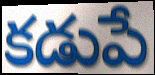
కడుపే